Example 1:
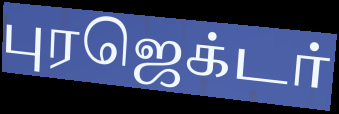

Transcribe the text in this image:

புரஜெக்டர்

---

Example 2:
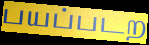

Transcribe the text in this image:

பயப்படற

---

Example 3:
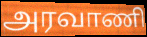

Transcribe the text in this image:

அரவாணி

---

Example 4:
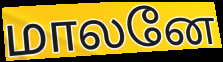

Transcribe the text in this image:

மாலனே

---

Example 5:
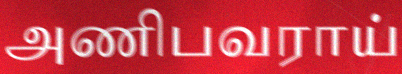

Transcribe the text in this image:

அணிபவராய்